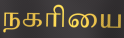
நகரியை